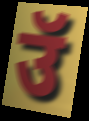
उॅ